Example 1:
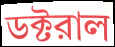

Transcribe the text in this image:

ডক্টরাল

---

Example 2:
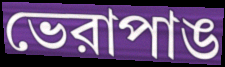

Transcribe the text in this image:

ভেরাপাঙ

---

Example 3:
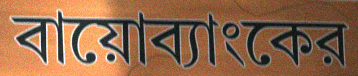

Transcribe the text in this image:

বায়োব্যাংকের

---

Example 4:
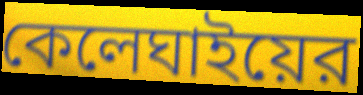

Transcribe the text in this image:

কেলেঘাইয়ের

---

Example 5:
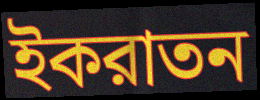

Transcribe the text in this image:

ইকরাতন